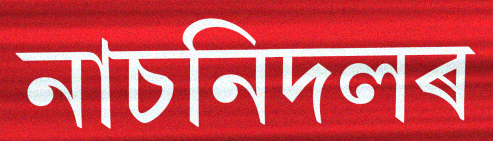
নাচনিদলৰ